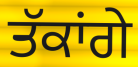
ਤੱਕਾਂਗੇ